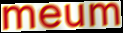
meum